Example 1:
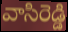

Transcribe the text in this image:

వాసిరెడ్డి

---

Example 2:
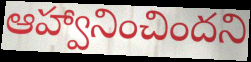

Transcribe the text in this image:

ఆహ్వానించిందని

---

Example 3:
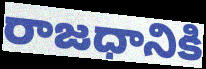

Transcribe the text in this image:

రాజధానికి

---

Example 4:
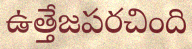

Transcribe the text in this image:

ఉత్తేజపరచింది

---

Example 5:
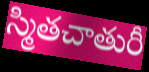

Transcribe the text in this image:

స్మితచాతురీ